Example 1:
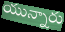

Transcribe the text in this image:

యున్నారు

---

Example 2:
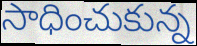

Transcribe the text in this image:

సాధించుకున్న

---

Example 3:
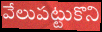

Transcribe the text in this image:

వేలుపట్టుకొని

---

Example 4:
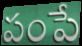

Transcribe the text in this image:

పంపే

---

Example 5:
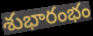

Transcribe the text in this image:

శుభారంభం